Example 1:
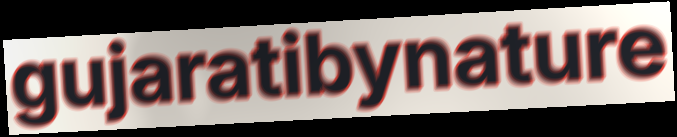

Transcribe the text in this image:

gujaratibynature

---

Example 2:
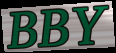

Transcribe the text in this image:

BBY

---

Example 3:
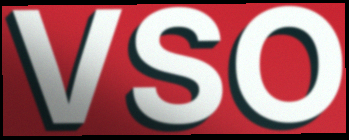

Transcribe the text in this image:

VSO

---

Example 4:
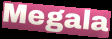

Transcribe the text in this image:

Megala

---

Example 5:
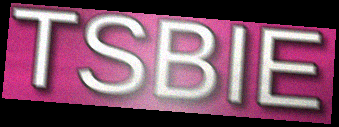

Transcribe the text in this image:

TSBIE